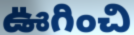
ఊగించి